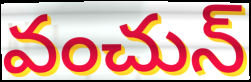
వంచున్